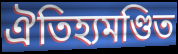
ঐতিহ্যমণ্ডিত